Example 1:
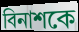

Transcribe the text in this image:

বিনাশকে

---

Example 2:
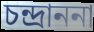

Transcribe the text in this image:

চন্দ্রাননা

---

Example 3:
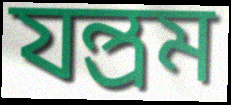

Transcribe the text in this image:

যন্ত্রম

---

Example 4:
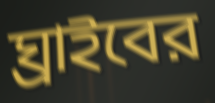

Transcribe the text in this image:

ঘ্রাইবের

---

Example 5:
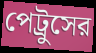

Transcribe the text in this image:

পেট্রুসের